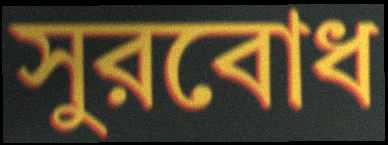
সুরবোধ